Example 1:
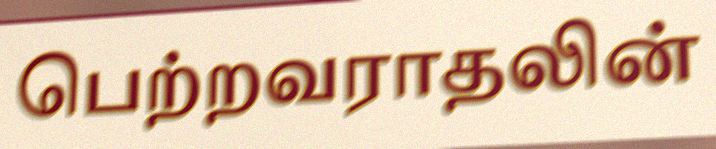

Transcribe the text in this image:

பெற்றவராதலின்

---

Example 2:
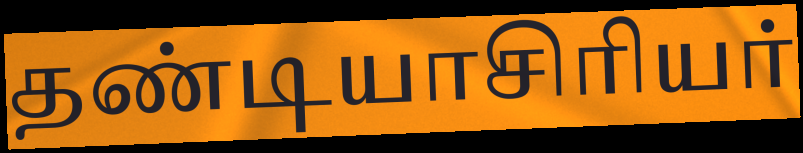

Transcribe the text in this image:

தண்டியாசிரியர்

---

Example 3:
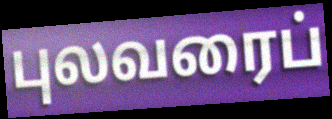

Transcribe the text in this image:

புலவரைப்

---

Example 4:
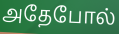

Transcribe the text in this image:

அதேபோல்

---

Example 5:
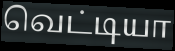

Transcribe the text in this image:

வெட்டியா